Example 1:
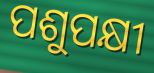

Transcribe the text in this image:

ପଶୁପକ୍ଷୀ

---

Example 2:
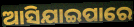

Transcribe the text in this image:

ଆସିଯାଇପାରେ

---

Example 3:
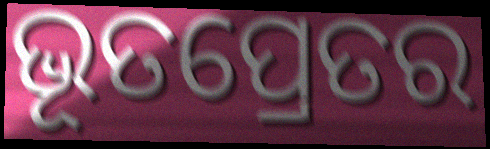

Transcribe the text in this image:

ଭୂତପ୍ରେତର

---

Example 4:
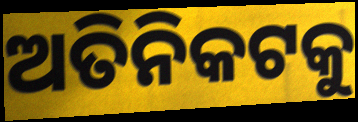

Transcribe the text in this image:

ଅତିନିକଟକୁ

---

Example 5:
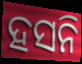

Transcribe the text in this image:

ହସନି